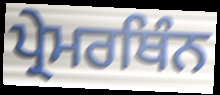
ਪ੍ਰੇਮਰਥਿੰਨ